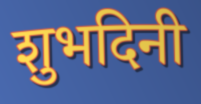
शुभदिनी